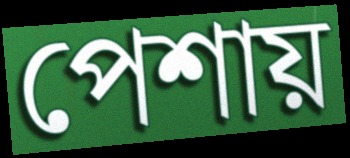
পেশায়